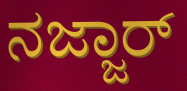
ನಜ್ಜಾರ್